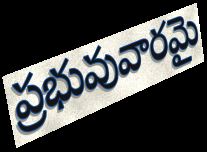
ప్రభువువారమై